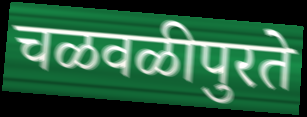
चळवळीपुरते